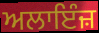
ਅਲਾਇੰਜ਼